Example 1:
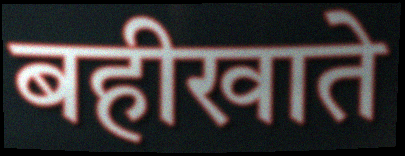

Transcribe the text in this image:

बहीखाते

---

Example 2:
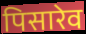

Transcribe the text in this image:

पिसारेव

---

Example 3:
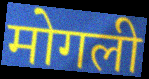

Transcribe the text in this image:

मोगली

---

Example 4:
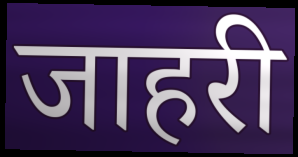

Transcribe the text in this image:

जाहरी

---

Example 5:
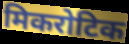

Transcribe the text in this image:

मिकरोटिक